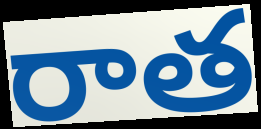
రాత